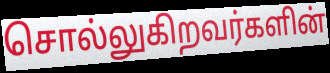
சொல்லுகிறவர்களின்